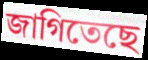
জাগিতেছে